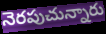
నెరపుచున్నారు